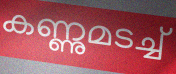
കണ്ണുമടച്ച്